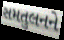
સમતુલનને